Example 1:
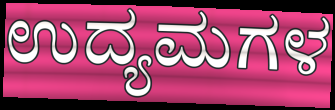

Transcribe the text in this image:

ಉದ್ಯಮಗಳ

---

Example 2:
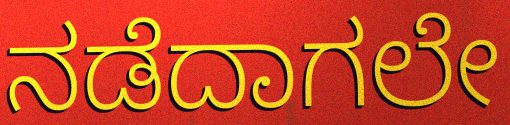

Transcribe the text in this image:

ನಡೆದಾಗಲೇ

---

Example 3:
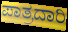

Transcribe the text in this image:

ಪಾತ್ರದಾರಿ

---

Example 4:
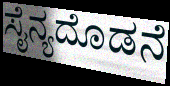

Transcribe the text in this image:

ಸೈನ್ಯದೊಡನೆ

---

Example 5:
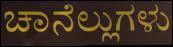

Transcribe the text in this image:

ಚಾನೆಲ್ಲುಗಳು